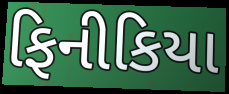
ફિનીકિયા